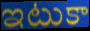
ఇటుకా